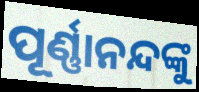
ପୂର୍ଣ୍ଣାନନ୍ଦଙ୍କୁ